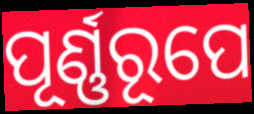
ପୂର୍ଣ୍ଣରୂପେ